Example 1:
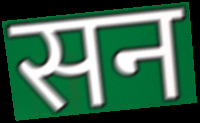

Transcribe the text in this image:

सन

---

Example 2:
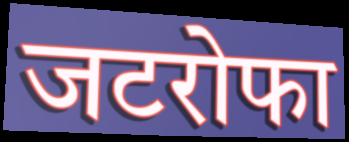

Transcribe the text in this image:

जटरोफा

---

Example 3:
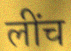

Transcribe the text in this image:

लींच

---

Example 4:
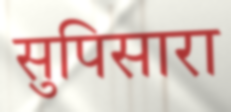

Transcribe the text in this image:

सुपिसारा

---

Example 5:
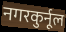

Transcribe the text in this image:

नगरकुर्नूल